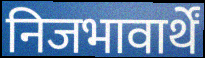
निजभावार्थें